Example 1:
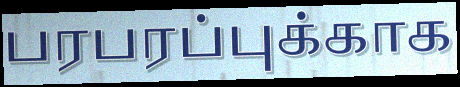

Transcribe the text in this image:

பரபரப்புக்காக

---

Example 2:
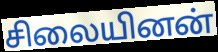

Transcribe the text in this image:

சிலையினன்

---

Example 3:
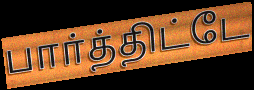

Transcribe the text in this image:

பார்த்திட்டே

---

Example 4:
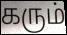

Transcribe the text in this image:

கரும்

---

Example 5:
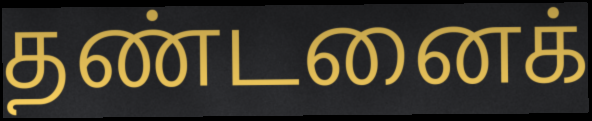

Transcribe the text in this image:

தண்டனைக்